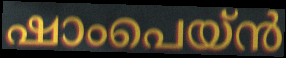
ഷാംപെയ്ൻ